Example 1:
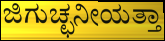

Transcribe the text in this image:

ಜಿಗುಚ್ಛನೀಯತ್ತಾ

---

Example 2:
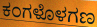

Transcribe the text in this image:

ಕಂಗಳೊಳಗಣ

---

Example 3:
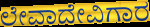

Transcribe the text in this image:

ಲೇವಾದೇವಿಗಾರ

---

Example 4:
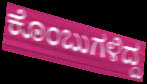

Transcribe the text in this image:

ಕೊಂಬುಗಳಿದ್ದ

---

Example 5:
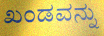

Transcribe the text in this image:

ಖಂಡವನ್ನು